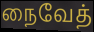
நைவேத்